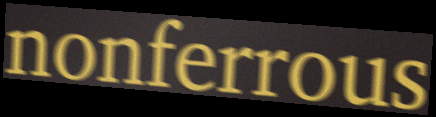
nonferrous